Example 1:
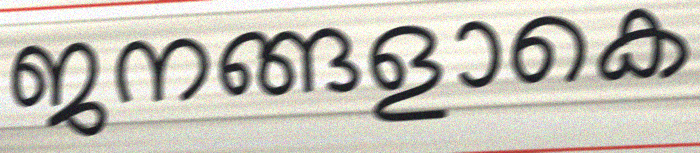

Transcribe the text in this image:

ജനങ്ങളാകെ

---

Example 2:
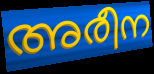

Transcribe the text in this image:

അരീന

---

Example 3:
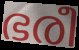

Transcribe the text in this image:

ഭരീ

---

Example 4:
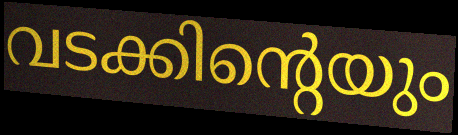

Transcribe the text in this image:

വടക്കിന്റെയും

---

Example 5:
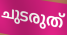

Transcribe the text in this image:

ചുടരുത്